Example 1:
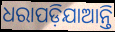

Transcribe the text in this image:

ଧରାପଡ଼ିଯାଆନ୍ତି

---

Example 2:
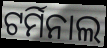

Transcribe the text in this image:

ଟର୍ମିନାଲ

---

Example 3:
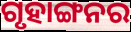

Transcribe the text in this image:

ଗୃହାଙ୍ଗନର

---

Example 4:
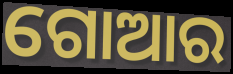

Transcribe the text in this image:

ଗୋଆର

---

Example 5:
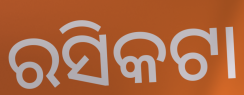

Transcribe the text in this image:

ରସିକଟା